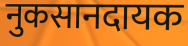
नुकसानदायक